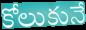
కోలుకునే